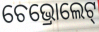
ଚେଭ୍ରୋଲେଟ୍